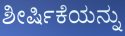
ಶೀರ್ಷಿಕೆಯನ್ನು